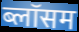
ब्लॉसम